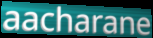
aacharane